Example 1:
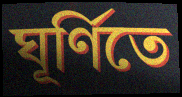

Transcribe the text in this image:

ঘূর্ণিতে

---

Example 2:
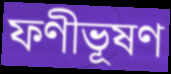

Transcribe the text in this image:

ফণীভূষণ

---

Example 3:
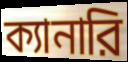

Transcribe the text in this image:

ক্যানারি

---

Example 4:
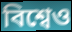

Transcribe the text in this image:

বিশ্বেও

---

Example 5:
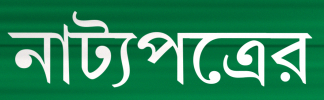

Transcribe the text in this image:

নাট্যপত্রের